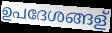
ഉപദേശങ്ങള്